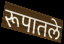
रूपातले